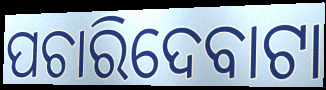
ପଚାରିଦେବାଟା